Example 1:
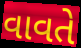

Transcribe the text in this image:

વાવતે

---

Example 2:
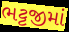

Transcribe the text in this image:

ભટ્ટજીમાં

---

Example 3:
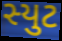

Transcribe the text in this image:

સ્યુટ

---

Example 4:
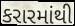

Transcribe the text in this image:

કરારમાંથી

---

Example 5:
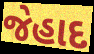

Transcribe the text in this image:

જેહાદ